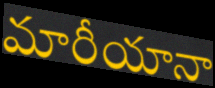
మారీయానా